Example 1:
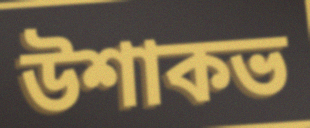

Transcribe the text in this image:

উশাকভ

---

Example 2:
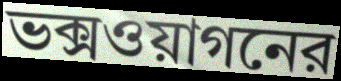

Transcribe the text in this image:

ভক্সওয়াগনের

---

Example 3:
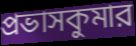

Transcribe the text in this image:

প্রভাসকুমার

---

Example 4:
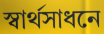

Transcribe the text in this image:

স্বার্থসাধনে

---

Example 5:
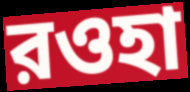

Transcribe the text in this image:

রওহা